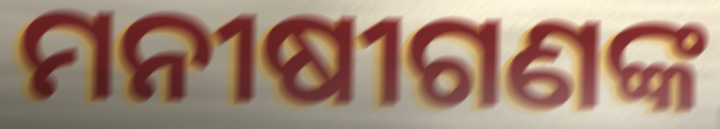
ମନୀଷୀଗଣଙ୍କ